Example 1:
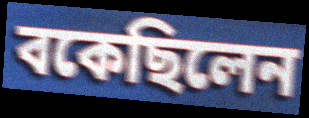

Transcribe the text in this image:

বকেছিলেন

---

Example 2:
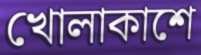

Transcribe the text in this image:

খোলাকাশে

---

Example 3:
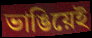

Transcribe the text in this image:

ভাঙিয়েই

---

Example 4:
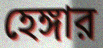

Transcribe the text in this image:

হেঙ্গার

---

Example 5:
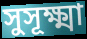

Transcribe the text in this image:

সুসূক্ষ্মা